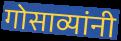
गोसाव्यांनी